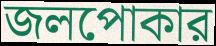
জলপোকার